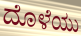
ದೊಳೆಯು